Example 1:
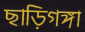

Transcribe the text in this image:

ছাড়িগঙ্গা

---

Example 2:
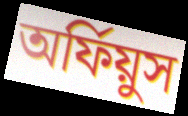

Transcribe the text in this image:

অর্ফিয়ুস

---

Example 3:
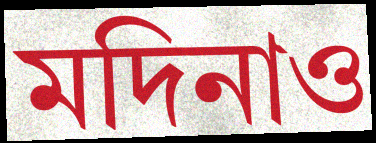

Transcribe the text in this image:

মদিনাও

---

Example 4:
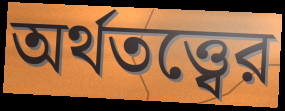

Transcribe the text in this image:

অর্থতত্ত্বের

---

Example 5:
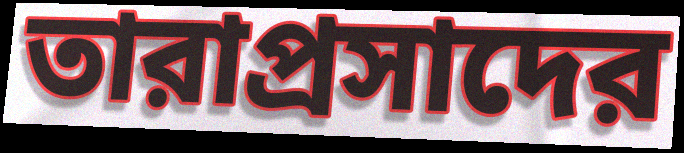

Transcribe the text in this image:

তারাপ্রসাদের